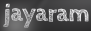
jayaram